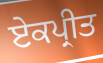
ਏਕਪ੍ਰੀਤ